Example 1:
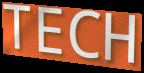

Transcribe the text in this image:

TECH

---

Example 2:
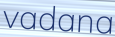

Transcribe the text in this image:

vadana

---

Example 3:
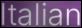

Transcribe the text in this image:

Italian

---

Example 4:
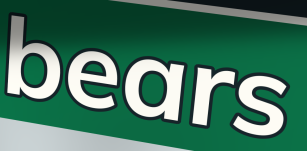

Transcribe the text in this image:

bears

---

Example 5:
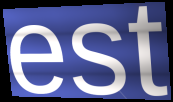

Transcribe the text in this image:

est